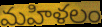
మహిళలం